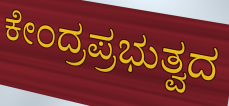
ಕೇಂದ್ರಪ್ರಭುತ್ವದ